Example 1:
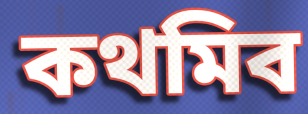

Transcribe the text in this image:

কথমিব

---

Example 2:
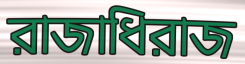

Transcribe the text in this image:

রাজাধিরাজ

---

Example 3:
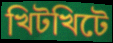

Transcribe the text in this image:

খিটখিটে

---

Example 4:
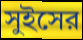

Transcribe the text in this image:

সুইসের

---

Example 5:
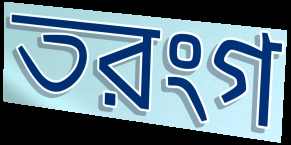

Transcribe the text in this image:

তরংগ